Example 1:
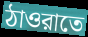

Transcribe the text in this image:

ঠাওরাতে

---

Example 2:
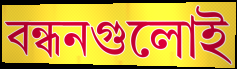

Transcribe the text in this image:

বন্ধনগুলোই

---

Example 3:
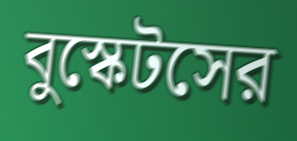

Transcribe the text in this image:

বুস্কেটসের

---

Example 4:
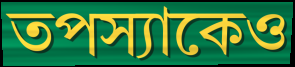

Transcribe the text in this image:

তপস্যাকেও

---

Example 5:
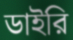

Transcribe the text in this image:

ডাইরি